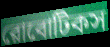
রোবোটিকস